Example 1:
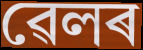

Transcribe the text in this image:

ৱেলৰ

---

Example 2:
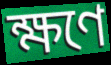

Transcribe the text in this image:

ক্ষণে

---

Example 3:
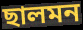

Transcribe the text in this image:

ছালমন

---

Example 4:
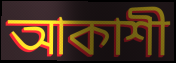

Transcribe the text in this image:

আকাশী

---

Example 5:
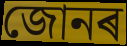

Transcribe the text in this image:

জোনৰ